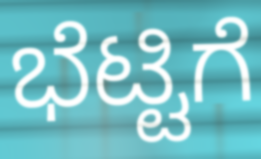
ಭೆಟ್ಟಿಗೆ